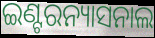
ଇଣ୍ଟରନ୍ୟାସନାଲ